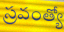
స్రవంత్యో